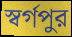
স্বর্গপুর